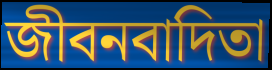
জীবনবাদিতা